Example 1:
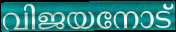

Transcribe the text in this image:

വിജയനോട്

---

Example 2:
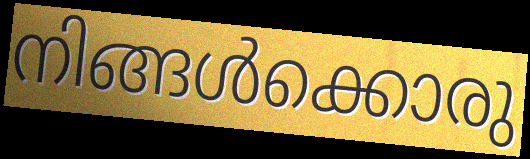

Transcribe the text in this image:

നിങ്ങൾക്കൊരു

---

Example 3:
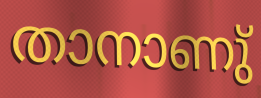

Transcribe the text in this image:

താനാണു്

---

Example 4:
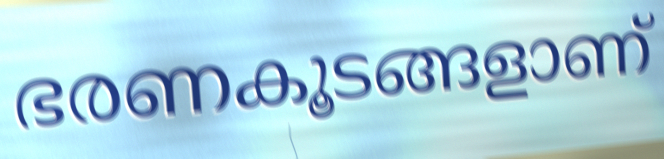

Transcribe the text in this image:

ഭരണകൂടങ്ങളാണ്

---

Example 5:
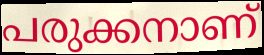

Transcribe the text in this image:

പരുക്കനാണ്